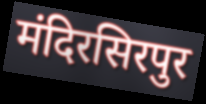
मंदिरसिरपुर